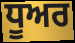
ਧੂਅਰ